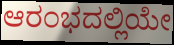
ಆರಂಭದಲ್ಲಿಯೇ